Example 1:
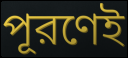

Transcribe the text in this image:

পূরণেই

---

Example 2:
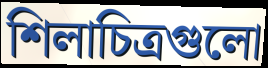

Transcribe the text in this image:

শিলাচিত্রগুলো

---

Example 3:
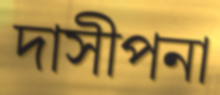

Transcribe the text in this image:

দাসীপনা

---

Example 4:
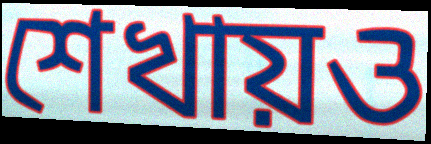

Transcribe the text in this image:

শেখায়ও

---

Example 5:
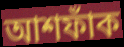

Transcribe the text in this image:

আশফাঁক